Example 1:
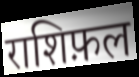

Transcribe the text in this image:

राशिफ़ल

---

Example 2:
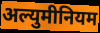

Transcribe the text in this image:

अल्युमीनियम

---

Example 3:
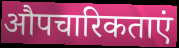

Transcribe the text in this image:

औपचारिकताएं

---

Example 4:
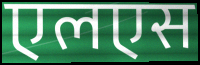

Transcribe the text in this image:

एलएस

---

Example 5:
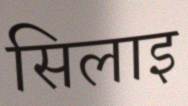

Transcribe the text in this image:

सिलाइ